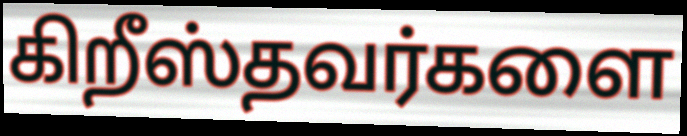
கிறீஸ்தவர்களை